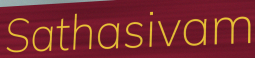
Sathasivam